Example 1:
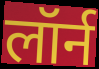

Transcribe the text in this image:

लॉर्न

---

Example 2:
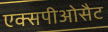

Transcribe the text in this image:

एक्सपीओसैट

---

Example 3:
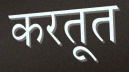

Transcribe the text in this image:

करतूत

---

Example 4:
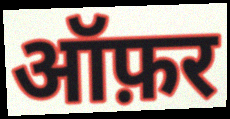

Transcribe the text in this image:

ऑफ़र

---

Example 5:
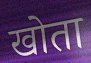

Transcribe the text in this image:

खोता